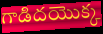
గాడిదయొక్క